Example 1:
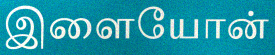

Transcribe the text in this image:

இளையோன்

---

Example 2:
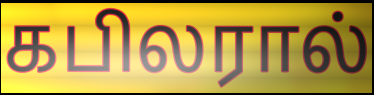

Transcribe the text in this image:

கபிலரால்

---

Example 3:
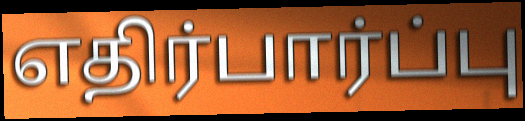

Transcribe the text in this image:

எதிர்பார்ப்பு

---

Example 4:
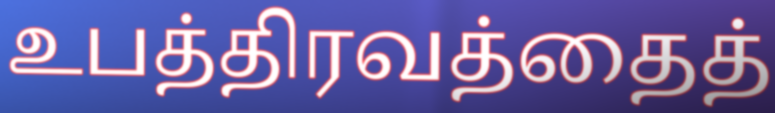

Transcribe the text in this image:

உபத்திரவத்தைத்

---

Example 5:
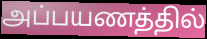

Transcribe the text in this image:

அப்பயணத்தில்